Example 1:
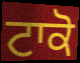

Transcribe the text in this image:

ਟਾਕੋ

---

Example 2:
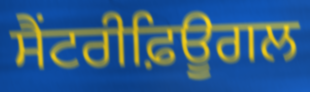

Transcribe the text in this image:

ਸੈਂਟਰੀਫ਼ਿਊਗਲ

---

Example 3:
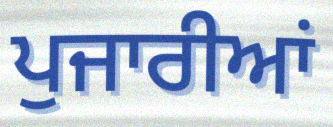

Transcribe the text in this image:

ਪੁਜਾਰੀਆਂ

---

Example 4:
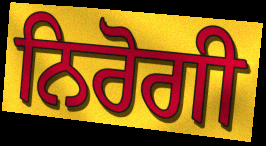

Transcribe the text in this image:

ਨਿਰੋਗੀ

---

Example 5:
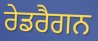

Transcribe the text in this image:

ਰੇਡਰੈਗਨ